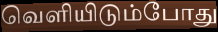
வெளியிடும்போது